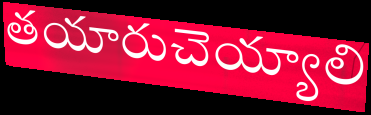
తయారుచెయ్యాలి